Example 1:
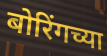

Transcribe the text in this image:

बोरिंगच्या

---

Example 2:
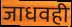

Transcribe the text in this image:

जाधवही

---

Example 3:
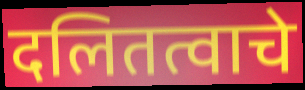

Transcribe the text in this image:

दलितत्वाचे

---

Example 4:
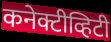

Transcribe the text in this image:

कनेक्टीव्हिटी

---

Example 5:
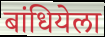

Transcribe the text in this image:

बांधियेला